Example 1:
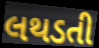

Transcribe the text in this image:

લથડતી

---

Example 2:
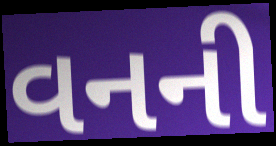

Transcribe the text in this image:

વનની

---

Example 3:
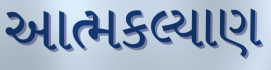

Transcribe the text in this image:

આત્મકલ્યાણ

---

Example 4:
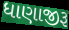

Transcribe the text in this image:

ધાણાજીરૂ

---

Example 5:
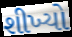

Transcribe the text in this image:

શીખ્યો